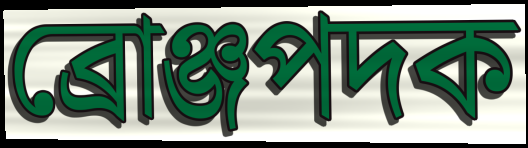
ব্রোঞ্জপদক